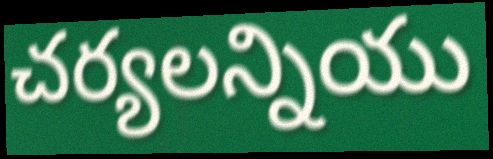
చర్యలన్నియు